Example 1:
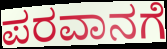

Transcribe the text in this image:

ಪರವಾನಗೆ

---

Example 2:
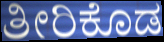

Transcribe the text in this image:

ತೀರಿಕೊಡ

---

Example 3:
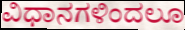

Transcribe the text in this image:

ವಿಧಾನಗಳಿಂದಲೂ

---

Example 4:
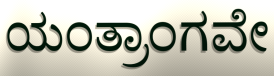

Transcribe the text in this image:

ಯಂತ್ರಾಂಗವೇ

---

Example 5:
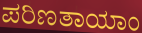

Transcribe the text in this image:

ಪರಿಣತಾಯಾಂ